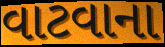
વાટવાના